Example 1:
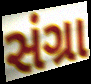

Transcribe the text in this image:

સંગ્રા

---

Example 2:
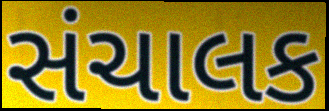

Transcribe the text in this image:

સંચાલક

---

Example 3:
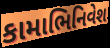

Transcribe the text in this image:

કામાભિનિવેશ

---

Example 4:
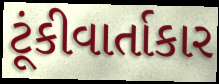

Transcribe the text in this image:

ટૂંકીવાર્તાકાર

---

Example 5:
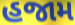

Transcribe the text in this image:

હજામ